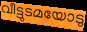
വീട്ടുടമയോടു